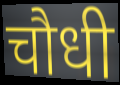
चौधी